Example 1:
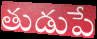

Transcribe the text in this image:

తుడుపే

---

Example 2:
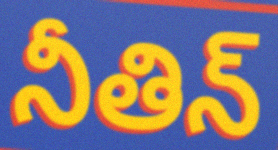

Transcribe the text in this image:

నీతిన్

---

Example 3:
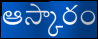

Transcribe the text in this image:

ఆస్కారం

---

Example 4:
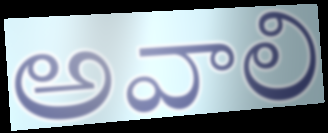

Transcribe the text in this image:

అవాలి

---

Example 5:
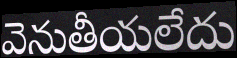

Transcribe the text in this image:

వెనుతీయలేదు